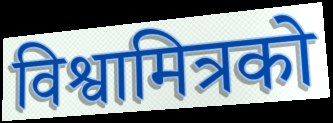
विश्वामित्रको